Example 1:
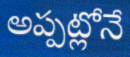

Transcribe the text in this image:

అప్పట్లోనే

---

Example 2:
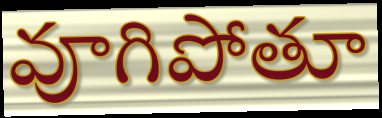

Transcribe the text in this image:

వూగిపోతూ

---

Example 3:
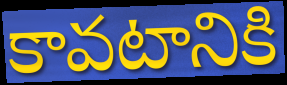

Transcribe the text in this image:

కావటానికి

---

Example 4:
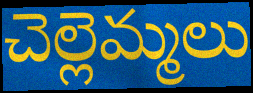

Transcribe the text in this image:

చెల్లెమ్మలు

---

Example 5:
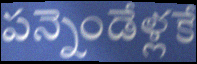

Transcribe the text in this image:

పన్నెండేళ్లకే